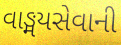
વાઙ્મયસેવાની